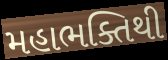
મહાભક્તિથી